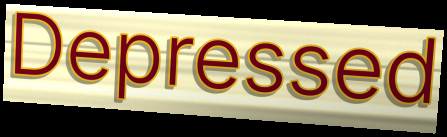
Depressed